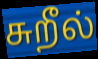
சுறீல்